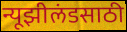
न्यूझीलंडसाठी